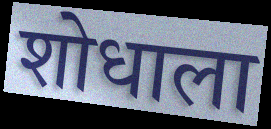
शोधाला